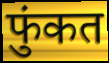
फुंकत